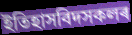
ইতিহাসবিদসকলৰ